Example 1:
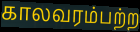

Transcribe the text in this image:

காலவரம்பற்ற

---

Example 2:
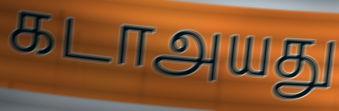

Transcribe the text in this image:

கடாஅயது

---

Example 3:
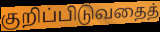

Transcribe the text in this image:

குறிப்பிடுவதைத்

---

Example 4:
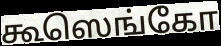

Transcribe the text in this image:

கூஸெங்கோ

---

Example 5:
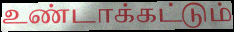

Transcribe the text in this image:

உண்டாக்கட்டும்